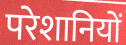
परेशानियों